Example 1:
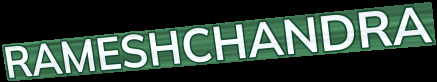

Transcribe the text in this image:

RAMESHCHANDRA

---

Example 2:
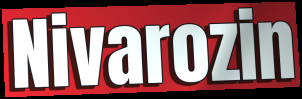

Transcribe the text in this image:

Nivarozin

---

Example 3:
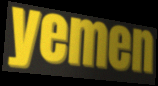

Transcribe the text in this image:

yemen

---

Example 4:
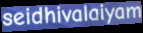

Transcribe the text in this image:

seidhivalaiyam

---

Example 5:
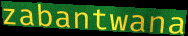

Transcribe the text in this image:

zabantwana